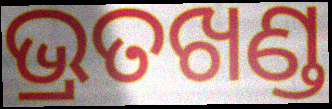
ଭ୍ରତଖଣ୍ଡ